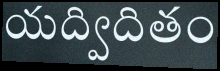
యద్విదితం